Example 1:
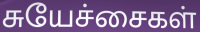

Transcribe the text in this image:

சுயேச்சைகள்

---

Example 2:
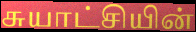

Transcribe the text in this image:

சுயாட்சியின்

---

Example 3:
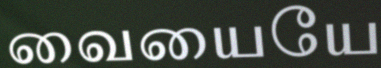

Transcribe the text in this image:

வையையே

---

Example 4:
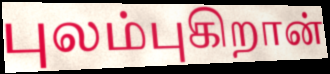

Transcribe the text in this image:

புலம்புகிறான்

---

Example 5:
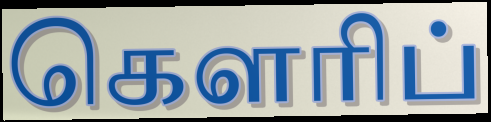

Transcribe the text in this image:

கௌரிப்